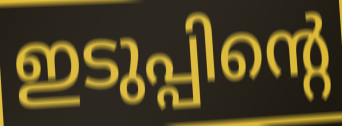
ഇടുപ്പിന്റെ